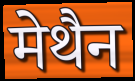
मेथैन